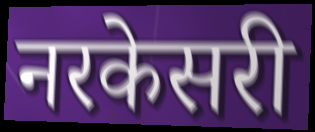
नरकेसरी